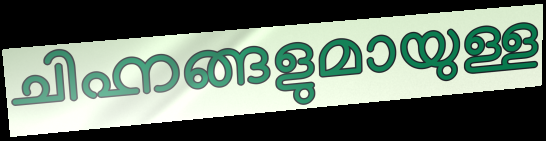
ചിഹ്നങ്ങളുമായുള്ള